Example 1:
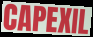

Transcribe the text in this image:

CAPEXIL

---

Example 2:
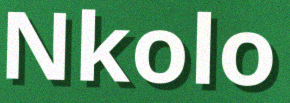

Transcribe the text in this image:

Nkolo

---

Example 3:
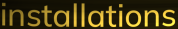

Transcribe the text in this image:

installations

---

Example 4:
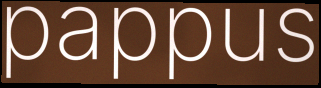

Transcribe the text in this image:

pappus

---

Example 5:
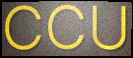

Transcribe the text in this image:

CCU